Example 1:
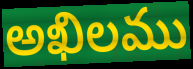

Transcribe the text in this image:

అఖిలము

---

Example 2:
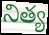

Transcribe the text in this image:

నిత్య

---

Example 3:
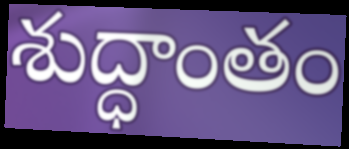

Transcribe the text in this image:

శుద్ధాంతం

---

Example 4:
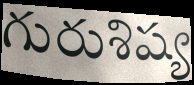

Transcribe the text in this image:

గురుశిష్య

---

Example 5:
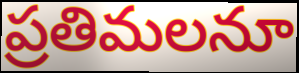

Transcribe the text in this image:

ప్రతిమలనూ